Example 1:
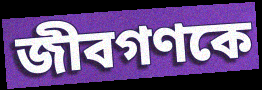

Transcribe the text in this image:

জীবগণকে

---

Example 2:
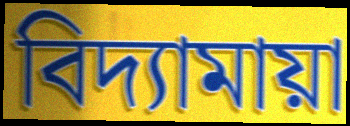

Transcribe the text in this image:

বিদ্যামায়া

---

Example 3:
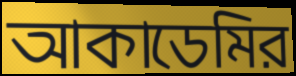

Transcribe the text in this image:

আকাডেমির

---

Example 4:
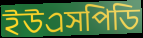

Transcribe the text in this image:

ইউএসপিডি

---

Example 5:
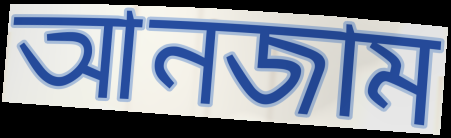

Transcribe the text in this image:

আনজাম